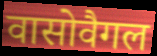
वासोवैगल